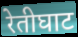
रेतीघाट